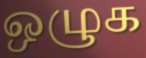
ஒழுக